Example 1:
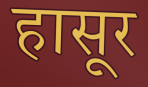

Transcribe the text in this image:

हासूर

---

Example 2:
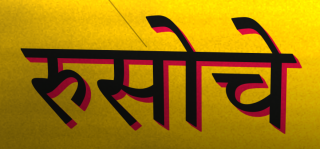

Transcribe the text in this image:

रुसोचे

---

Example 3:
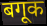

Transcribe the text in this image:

बगूक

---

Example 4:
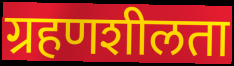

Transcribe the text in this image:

ग्रहणशीलता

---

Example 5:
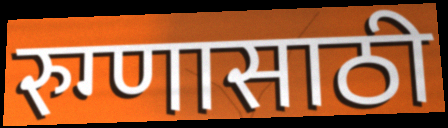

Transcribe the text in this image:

रुग्णासाठी